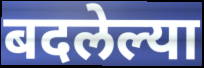
बदलेल्या